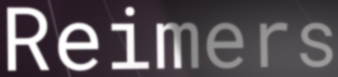
Reimers